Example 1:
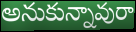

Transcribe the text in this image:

అనుకున్నావురా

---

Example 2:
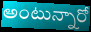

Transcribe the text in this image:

అంటున్నారో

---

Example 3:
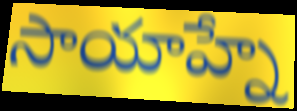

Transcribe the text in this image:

సాయాహ్నే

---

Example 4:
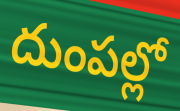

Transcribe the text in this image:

దుంపల్లో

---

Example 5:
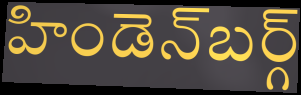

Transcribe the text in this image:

హిండెన్‌బర్గ్